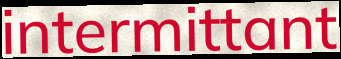
intermittant